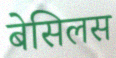
बेसिलस